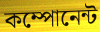
কম্পোনেন্ট